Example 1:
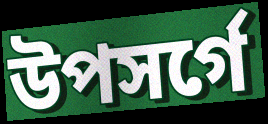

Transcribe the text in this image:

উপসর্গে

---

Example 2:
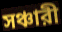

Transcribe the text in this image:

সঞ্চারী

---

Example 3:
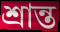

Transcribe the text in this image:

শ্রান্ত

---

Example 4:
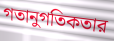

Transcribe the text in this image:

গতানুগতিকতার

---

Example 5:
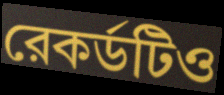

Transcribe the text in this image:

রেকর্ডটিও